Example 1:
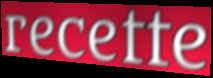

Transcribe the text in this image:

recette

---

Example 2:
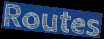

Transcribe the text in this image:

Routes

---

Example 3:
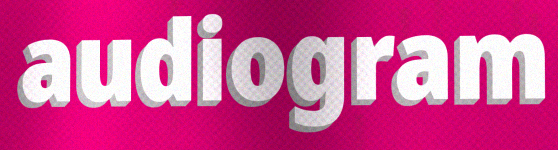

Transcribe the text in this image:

audiogram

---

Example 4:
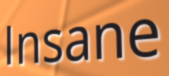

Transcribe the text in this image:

Insane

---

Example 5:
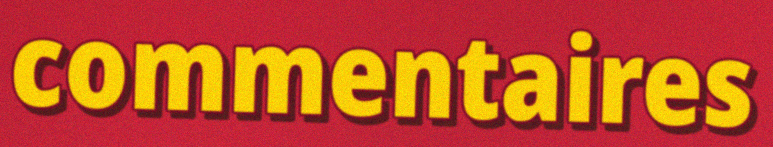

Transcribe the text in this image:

commentaires